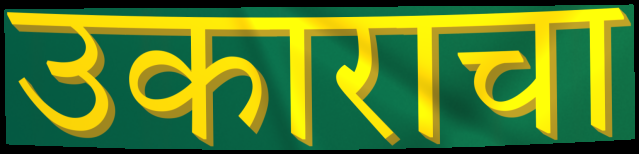
उकाराचा